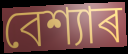
বেশ্যাৰ